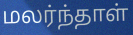
மலர்ந்தாள்